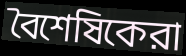
বৈশেষিকেরা